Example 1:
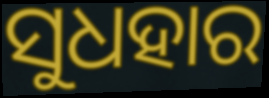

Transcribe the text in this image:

ସୁଧହାର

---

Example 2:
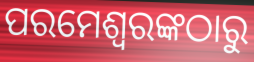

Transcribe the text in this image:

ପରମେଶ୍ଵରଙ୍କଠାରୁ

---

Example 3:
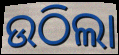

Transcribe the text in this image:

ଉଠିଲା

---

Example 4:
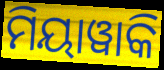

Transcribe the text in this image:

ମିୟାୱାକି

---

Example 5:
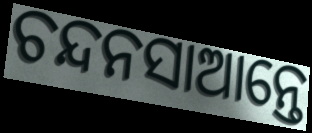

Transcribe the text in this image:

ଚନ୍ଦନସାଆନ୍ତେ